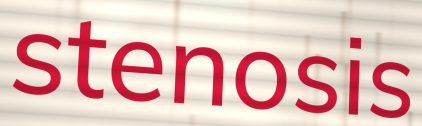
stenosis